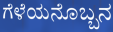
ಗೆಳೆಯನೊಬ್ಬನ